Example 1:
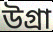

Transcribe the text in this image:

উগ্রা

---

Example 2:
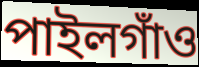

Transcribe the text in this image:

পাইলগাঁও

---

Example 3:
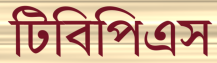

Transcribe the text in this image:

টিবিপিএস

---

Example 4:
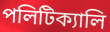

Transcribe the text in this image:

পলিটিক্যালি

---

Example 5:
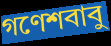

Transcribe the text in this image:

গণেশবাবু